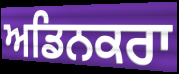
ਅਡਿਨਕਰਾ